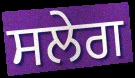
ਸਲੇਗ